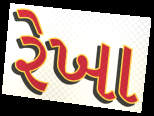
રેખા